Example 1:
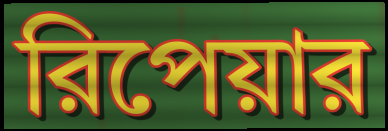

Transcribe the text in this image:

রিপেয়ার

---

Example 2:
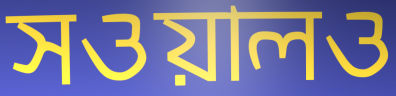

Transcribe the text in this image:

সওয়ালও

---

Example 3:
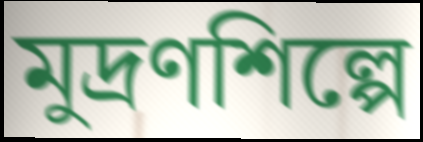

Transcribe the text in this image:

মুদ্রণশিল্পে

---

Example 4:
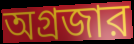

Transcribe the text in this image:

অগ্রজার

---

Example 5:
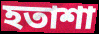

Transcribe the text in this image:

হতাশা